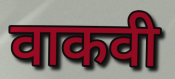
वाकवी